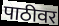
पाठीवर